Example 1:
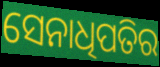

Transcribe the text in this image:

ସେନାଧିପତିର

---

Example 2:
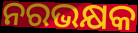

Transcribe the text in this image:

ନରଭକ୍ଷକ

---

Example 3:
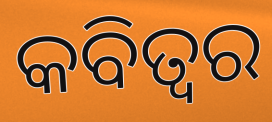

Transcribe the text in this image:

କବିତ୍ଵର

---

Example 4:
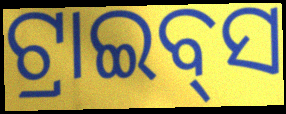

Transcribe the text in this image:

ଟ୍ରାଇବ୍‌ସ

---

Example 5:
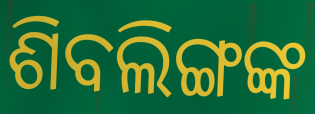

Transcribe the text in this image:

ଶିବଲିଙ୍ଗଙ୍କ